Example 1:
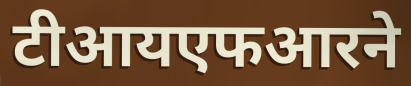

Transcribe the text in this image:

टीआयएफआरने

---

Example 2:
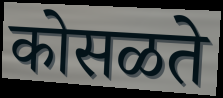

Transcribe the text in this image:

कोसळते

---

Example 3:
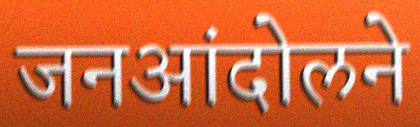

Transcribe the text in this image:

जनआंदोलने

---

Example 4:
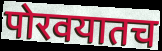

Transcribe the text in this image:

पोरवयातच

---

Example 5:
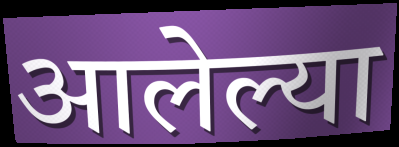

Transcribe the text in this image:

आलेल्या